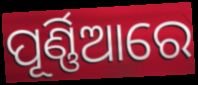
ପୂର୍ଣ୍ଣିଆରେ